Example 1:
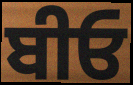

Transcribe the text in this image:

ਬੀਓ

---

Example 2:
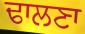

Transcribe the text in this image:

ਢਾਲਣਾ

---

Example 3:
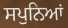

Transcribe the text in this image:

ਸਪੁਨਿਆਂ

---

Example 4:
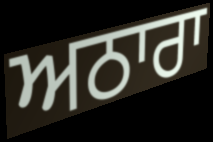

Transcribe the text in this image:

ਅਠਾਰਾ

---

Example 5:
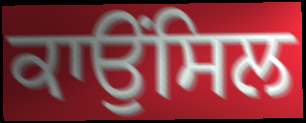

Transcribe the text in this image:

ਕਾਉਂਸਿਲ